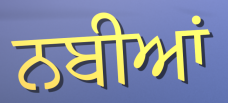
ਨਬੀਆਂ